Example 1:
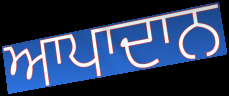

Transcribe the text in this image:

ਆਪਾਦਾਨ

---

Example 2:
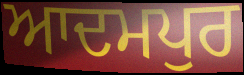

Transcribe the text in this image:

ਆਦਮਪੁਰ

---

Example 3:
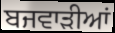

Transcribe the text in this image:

ਬਜਵਾੜੀਆਂ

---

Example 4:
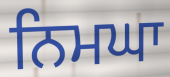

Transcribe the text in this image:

ਨਿਮਘਾ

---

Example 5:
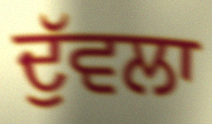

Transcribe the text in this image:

ਦੁੱਵਲਾ